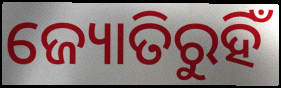
ଜ୍ୟୋତିରୁହିଁ